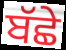
ਬੱਛੇ